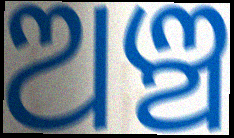
ଅଞ୍ଚ